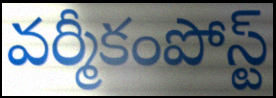
వర్మీకంపోస్ట్